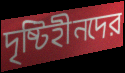
দৃষ্টিহীনদের